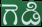
గెడి